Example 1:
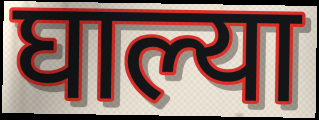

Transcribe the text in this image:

घाल्या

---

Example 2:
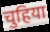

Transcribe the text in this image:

चुहिया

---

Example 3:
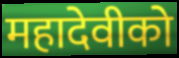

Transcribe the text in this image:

महादेवीको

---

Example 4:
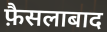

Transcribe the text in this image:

फ़ैसलाबाद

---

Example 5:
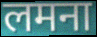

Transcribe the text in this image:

लमना